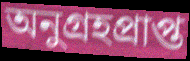
অনুগ্রহপ্রাপ্ত